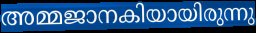
അമ്മജാനകിയായിരുന്നു